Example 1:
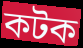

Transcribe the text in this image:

কটক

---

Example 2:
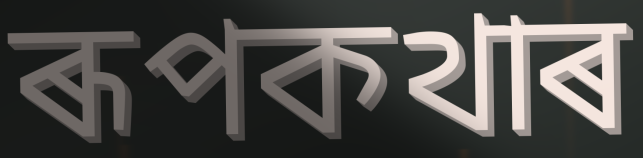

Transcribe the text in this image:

ৰূপকথাৰ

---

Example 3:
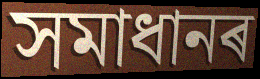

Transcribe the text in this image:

সমাধানৰ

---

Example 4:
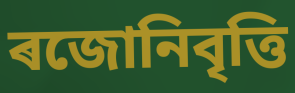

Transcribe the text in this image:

ৰজোনিবৃত্তি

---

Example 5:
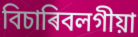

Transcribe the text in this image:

বিচাৰিবলগীয়া